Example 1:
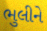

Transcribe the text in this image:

ભુલીને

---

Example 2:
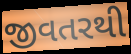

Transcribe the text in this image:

જીવતરથી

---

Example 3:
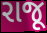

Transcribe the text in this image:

રાજૂ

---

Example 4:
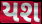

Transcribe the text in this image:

યશ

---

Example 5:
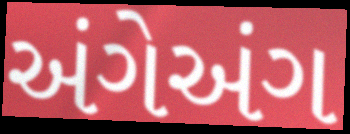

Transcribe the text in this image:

અંગેઅંગ